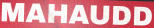
MAHAUDD